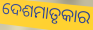
ଦେଶମାତୃକାର